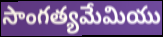
సాంగత్యమేమియు